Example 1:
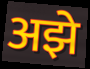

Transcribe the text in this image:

अझे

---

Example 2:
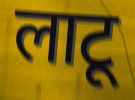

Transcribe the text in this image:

लाटू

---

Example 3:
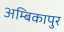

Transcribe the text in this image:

अम्बिकापुर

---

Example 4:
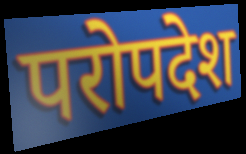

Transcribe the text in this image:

परोपदेश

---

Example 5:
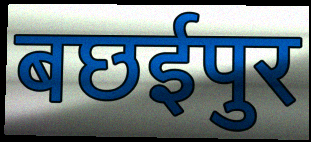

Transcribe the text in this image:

बछईपुर